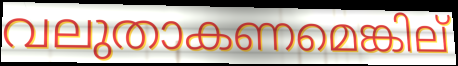
വലുതാകണമെങ്കില്